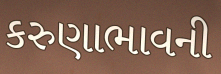
કરુણાભાવની